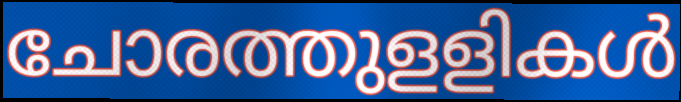
ചോരത്തുളളികൾ